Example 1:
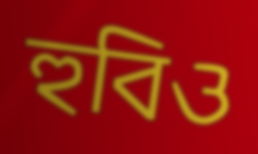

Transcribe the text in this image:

হুবিও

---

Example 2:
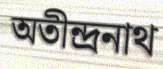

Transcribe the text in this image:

অতীন্দ্রনাথ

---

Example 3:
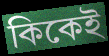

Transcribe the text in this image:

কিকেই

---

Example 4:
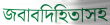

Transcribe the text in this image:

জবাবদিহিতাসহ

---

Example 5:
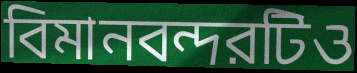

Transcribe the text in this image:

বিমানবন্দরটিও